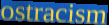
ostracism